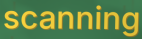
scanning